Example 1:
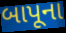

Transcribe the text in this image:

બાપૂના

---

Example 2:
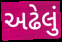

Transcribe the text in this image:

અઢેલું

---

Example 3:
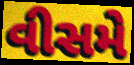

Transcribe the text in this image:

વીસમે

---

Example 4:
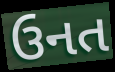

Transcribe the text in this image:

ઉનત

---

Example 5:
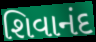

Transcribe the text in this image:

શિવાનંદ